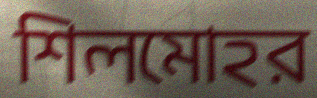
শিলমোহর